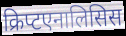
क्रिप्टएनालिसिस